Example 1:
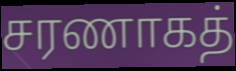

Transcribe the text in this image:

சரணாகத்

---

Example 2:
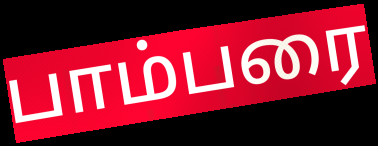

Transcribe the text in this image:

பாம்பரை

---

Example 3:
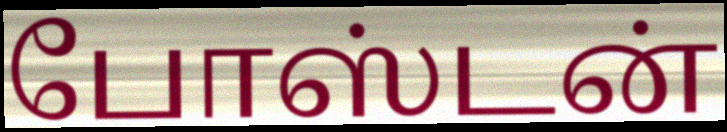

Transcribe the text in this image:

போஸ்டன்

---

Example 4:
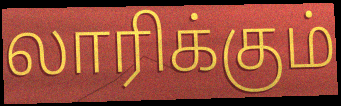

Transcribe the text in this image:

லாரிக்கும்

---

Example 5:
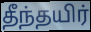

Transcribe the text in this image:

தீந்தயிர்